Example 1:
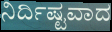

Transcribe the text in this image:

ನಿರ್ದಿಷ್ಟವಾದ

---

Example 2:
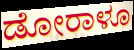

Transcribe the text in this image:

ಡೋರಾಳೂ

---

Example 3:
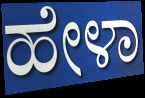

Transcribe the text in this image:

ಹೇಳಾ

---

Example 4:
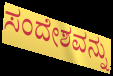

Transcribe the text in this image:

ಸಂದೇಶವನ್ನು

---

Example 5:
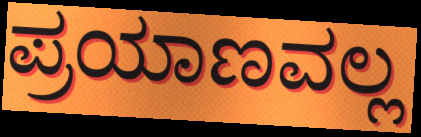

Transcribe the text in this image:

ಪ್ರಯಾಣವಲ್ಲ